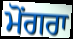
ਮੋਂਗਰਾ